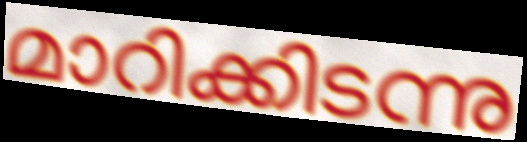
മാറിക്കിടന്നു